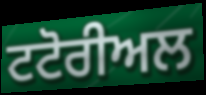
ਟਟੋਰੀਅਲ